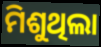
ମିଶୁଥିଲା